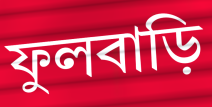
ফুলবাড়ি